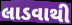
લાડવાથી